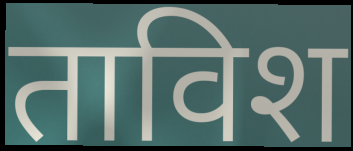
ताविश